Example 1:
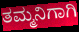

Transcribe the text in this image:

ತಮ್ಮನಿಗಾಗಿ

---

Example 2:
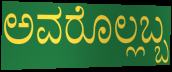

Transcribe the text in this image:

ಅವರೊಲ್ಲಬ್ಬ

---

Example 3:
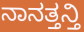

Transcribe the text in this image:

ನಾನತ್ತನ್ತಿ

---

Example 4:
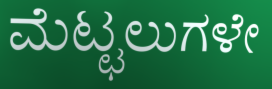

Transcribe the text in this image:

ಮೆಟ್ಟಲುಗಳೇ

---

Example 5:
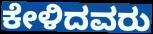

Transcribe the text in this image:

ಕೇಳಿದವರು